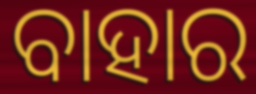
ବାହାର